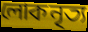
লোকনৃত্য